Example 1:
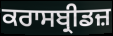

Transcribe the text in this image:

ਕਰਾਸਬ੍ਰੀਡਜ਼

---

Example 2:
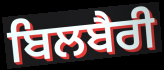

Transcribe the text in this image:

ਬਿਲਬੈਰੀ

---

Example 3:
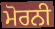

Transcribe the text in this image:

ਮੋਰਨੀ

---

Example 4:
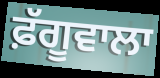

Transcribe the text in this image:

ਫ਼ੱਗੂਵਾਲਾ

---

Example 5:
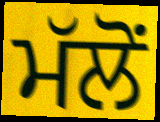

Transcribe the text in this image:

ਮੱਲੋਂ